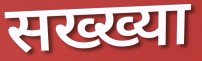
सख्ख्या